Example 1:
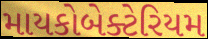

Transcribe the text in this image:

માયકોબેક્ટેરિયમ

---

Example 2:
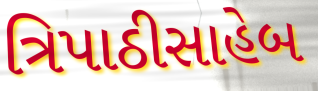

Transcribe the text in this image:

ત્રિપાઠીસાહેબ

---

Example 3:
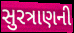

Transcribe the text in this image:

સુરત્રાણની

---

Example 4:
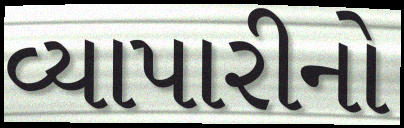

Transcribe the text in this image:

વ્યાપારીનો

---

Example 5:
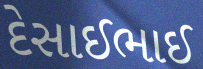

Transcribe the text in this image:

દેસાઈભાઈ